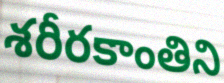
శరీరకాంతిని